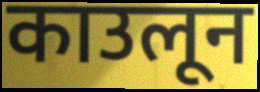
काउलून